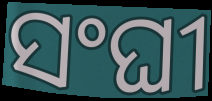
ସଂଘୀ